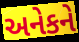
અનેકને